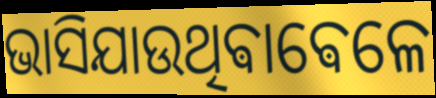
ଭାସିଯାଉଥିଵାଵେଳେ